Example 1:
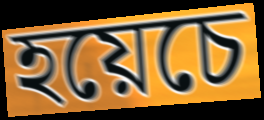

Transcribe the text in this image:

হয়েচে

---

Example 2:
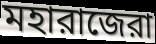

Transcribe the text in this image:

মহারাজেরা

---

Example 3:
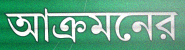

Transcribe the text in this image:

আক্রমনের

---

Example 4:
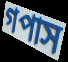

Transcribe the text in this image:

গপাস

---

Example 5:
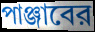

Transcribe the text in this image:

পাঞ্জাবের